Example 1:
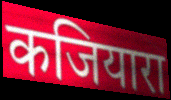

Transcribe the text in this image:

कजियारा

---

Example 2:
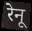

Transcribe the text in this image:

रेनू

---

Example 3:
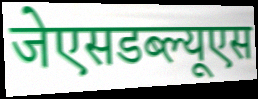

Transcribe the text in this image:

जेएसडब्ल्यूएस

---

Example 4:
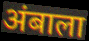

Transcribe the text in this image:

अंबाला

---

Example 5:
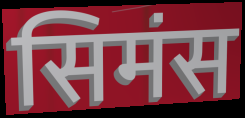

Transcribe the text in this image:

सिमंस